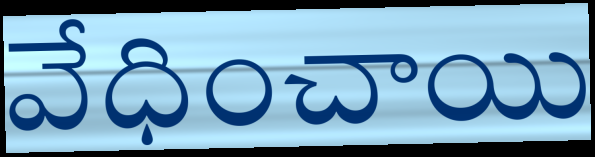
వేధించాయి